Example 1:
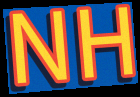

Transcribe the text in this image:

NH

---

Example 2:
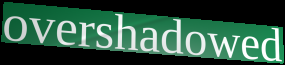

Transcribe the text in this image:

overshadowed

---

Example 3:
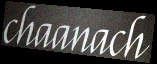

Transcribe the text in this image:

chaanach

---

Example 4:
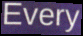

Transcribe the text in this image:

Every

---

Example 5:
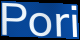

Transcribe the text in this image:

Pori